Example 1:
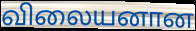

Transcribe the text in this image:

விலையனான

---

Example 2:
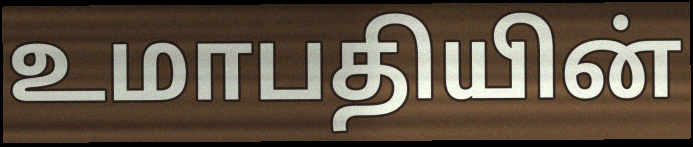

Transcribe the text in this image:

உமாபதியின்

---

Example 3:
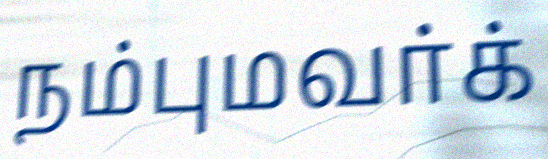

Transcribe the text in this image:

நம்புமவர்க்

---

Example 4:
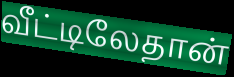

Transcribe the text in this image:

வீட்டிலேதான்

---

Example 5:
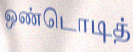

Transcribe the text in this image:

ஒண்டொடித்